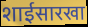
शाईसारखा